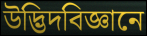
উদ্ভিদবিজ্ঞানে